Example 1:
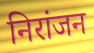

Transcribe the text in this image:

निरांजन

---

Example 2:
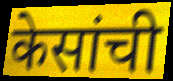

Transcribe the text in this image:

केसांची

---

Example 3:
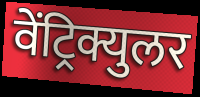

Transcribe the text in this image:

वेंट्रिक्युलर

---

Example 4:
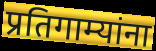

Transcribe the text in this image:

प्रतिगाम्यांना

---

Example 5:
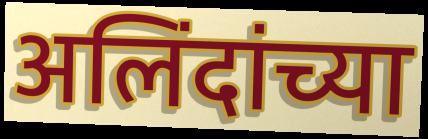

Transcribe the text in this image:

अलिंदांच्या